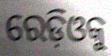
ରେଡ଼ିଓକୁ